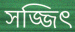
সজ্জিৎ